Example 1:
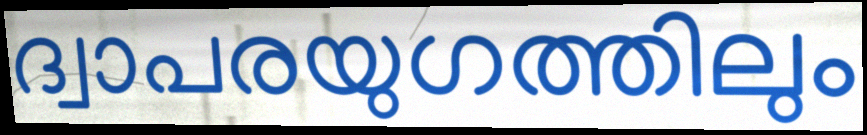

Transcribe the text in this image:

ദ്വാപരയുഗത്തിലും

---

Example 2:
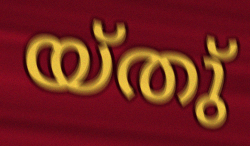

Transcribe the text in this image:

യ്തു്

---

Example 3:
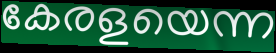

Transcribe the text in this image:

കേരളയെന്ന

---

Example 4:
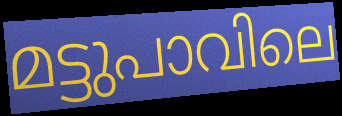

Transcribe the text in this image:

മട്ടുപാവിലെ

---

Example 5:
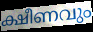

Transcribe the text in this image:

ക്ഷീണവും